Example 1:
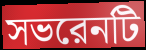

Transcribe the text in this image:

সভরেনটি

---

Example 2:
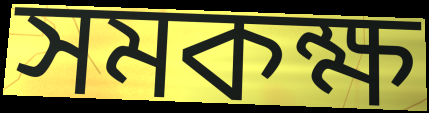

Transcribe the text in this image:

সমকক্ষ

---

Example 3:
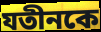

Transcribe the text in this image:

যতীনকে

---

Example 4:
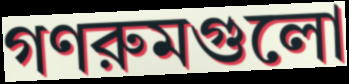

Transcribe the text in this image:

গণরুমগুলো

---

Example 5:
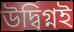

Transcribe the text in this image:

উদ্বিগ্নই